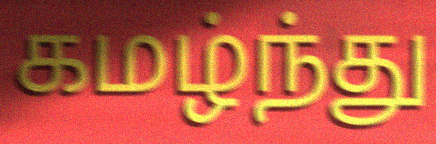
கமழ்ந்து